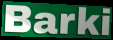
Barki